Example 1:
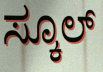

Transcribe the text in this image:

ಸ್ಕೂಲ್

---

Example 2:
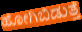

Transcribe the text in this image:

ಹೋಗಿಬಿಡುತ್ತೆ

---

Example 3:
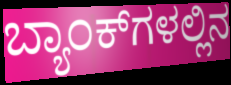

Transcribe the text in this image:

ಬ್ಯಾಂಕ್‌ಗಳಲ್ಲಿನ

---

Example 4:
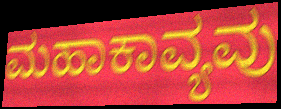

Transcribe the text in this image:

ಮಹಾಕಾವ್ಯವು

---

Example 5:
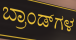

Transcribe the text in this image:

ಬ್ರಾಂಡ್‌ಗಳ